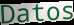
Datos